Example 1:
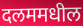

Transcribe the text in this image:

दलममधील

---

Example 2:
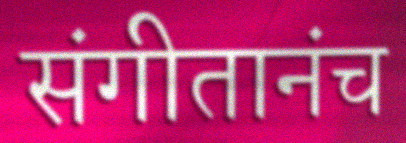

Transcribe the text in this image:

संगीतानंच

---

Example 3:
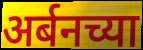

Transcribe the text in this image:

अर्बनच्या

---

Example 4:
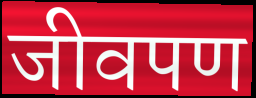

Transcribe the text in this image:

जीवपण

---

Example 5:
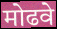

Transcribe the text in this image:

मोढवे